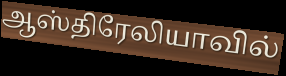
ஆஸ்திரேலியாவில்